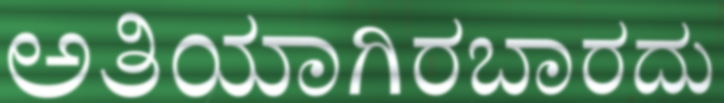
ಅತಿಯಾಗಿರಬಾರದು